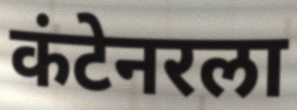
कंटेनरला